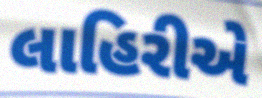
લાહિરીએ